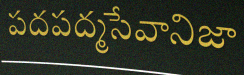
పదపద్మసేవానిజా